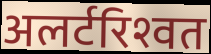
अलर्टरिश्वत